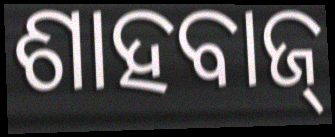
ଶାହବାଜ୍